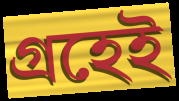
গ্রহেই